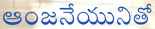
ఆంజనేయునితో